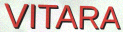
VITARA